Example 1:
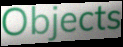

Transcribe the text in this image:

Objects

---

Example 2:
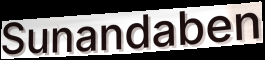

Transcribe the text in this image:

Sunandaben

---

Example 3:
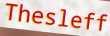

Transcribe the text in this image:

Thesleff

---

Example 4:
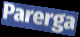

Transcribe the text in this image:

Parerga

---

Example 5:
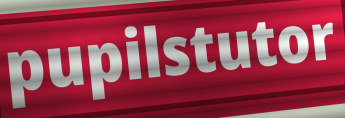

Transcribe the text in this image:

pupilstutor